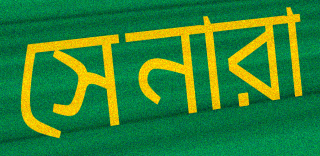
সেনারা